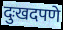
दुःखदपणे